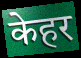
केहर